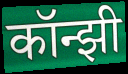
कॉन्झी